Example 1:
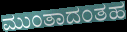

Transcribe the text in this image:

ಮುಂತಾದಂತಹ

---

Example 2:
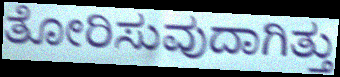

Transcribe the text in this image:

ತೋರಿಸುವುದಾಗಿತ್ತು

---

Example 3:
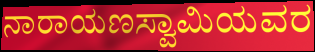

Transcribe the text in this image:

ನಾರಾಯಣಸ್ವಾಮಿಯವರ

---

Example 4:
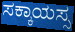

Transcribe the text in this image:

ಸಕ್ಕಾಯಸ್ಸ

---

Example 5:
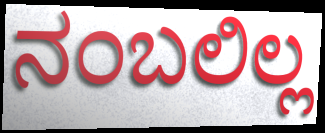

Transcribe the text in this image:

ನಂಬಲಿಲ್ಲ